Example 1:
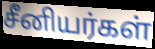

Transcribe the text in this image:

சீனியர்கள்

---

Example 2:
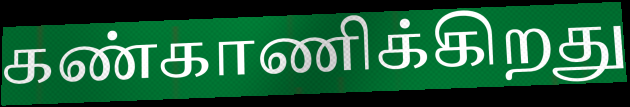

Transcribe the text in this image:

கண்காணிக்கிறது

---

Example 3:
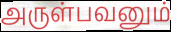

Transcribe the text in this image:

அருள்பவனும்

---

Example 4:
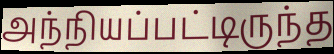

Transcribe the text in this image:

அந்நியப்பட்டிருந்த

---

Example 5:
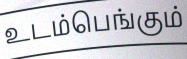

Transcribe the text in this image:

உடம்பெங்கும்